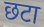
छटा